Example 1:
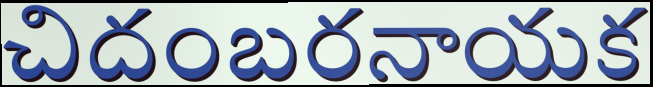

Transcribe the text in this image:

చిదంబరనాయక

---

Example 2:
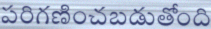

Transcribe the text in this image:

పరిగణించబడుతోంది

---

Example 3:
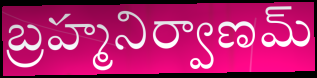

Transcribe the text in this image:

బ్రహ్మనిర్వాణమ్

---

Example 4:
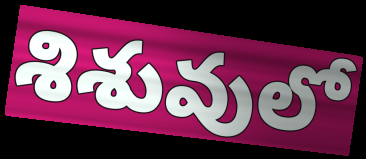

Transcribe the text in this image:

శిశువులో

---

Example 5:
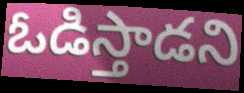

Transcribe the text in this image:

ఓడిస్తాడని